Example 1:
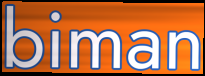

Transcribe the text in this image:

biman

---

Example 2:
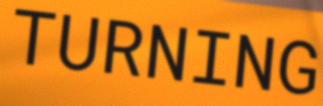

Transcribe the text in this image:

TURNING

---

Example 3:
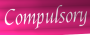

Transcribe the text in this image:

Compulsory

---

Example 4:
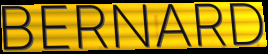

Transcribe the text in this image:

BERNARD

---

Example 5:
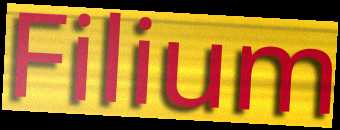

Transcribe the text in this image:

Filium